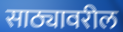
साठ्यावरील